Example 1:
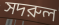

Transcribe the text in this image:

সদরুল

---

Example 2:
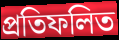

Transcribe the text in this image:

প্রতিফলিত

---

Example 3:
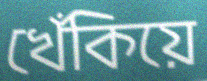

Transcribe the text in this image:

খেঁকিয়ে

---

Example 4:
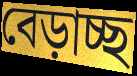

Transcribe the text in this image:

বেড়াচ্ছ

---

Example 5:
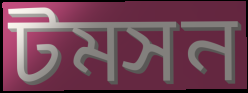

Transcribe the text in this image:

টমসন